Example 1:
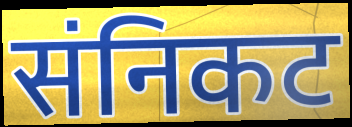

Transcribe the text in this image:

संनिकट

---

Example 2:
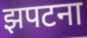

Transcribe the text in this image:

झपटना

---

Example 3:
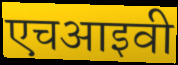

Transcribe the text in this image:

एचआइवी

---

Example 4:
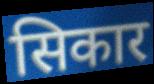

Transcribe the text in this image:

सिकार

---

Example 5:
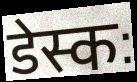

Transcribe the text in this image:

डेस्कः